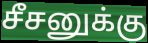
சீசனுக்கு